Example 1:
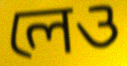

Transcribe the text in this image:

লেও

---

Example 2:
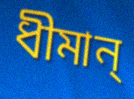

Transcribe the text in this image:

ধীমান্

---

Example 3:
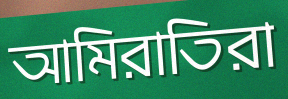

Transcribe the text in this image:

আমিরাতিরা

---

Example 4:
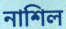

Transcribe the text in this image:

নাশিল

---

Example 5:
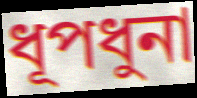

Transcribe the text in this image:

ধূপধুনা